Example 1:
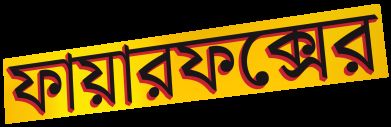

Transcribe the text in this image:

ফায়ারফক্সের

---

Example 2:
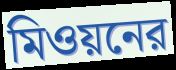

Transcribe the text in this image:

মিওয়নের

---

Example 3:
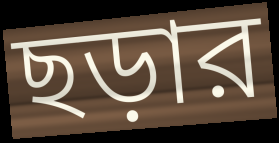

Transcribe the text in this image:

ছড়ার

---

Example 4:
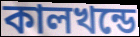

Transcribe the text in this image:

কালখন্ডে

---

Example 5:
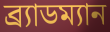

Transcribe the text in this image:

ব্র্যাডম্যান